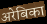
अरेबिका